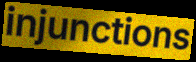
injunctions